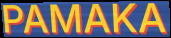
PAMAKA